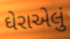
ઘેરાએલું